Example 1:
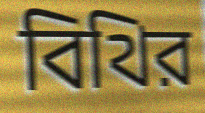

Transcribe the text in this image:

বিথির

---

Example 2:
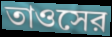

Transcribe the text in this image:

তাওসের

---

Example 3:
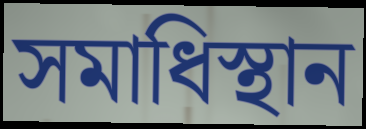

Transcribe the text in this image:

সমাধিস্থান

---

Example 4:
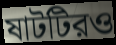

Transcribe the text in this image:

ষাটটিরও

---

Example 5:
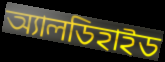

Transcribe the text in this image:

অ্যালডিহাইড